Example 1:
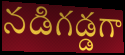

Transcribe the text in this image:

నడిగడ్డగా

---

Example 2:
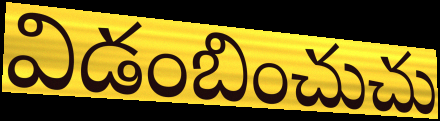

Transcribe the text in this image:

విడంబించుచు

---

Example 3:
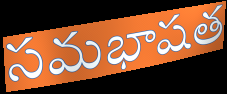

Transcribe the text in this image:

సమభాషత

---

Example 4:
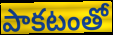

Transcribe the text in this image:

పాకటంతో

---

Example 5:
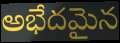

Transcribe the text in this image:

అభేదమైన